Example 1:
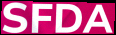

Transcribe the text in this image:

SFDA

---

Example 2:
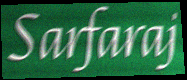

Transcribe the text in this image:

Sarfaraj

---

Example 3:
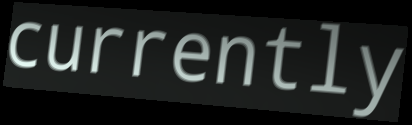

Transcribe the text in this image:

currently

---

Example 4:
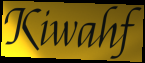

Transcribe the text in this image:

Kiwahf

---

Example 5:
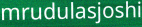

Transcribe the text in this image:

mrudulasjoshi